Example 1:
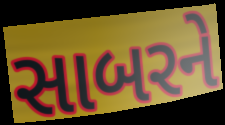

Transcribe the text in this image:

સાબરને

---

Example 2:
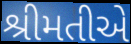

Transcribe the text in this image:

શ્રીમતીએ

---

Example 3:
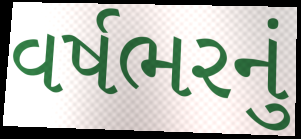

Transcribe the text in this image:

વર્ષભરનું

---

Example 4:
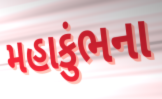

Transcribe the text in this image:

મહાકુંભના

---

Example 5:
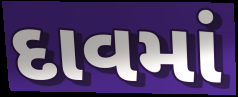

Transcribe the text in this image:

દાવમાં